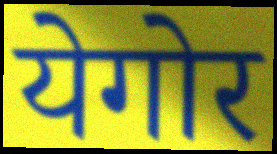
येगोर